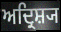
ਅਦ੍ਰਿਸ਼੍ਯ